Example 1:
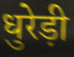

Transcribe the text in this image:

धुरेड़ी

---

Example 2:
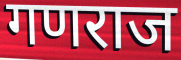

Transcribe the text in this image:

गणराज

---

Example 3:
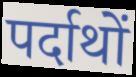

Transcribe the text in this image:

पर्दाथों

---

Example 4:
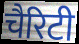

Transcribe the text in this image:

चैरिटी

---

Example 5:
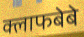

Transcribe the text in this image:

क्लाफबेबे